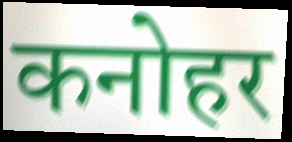
कनोहर